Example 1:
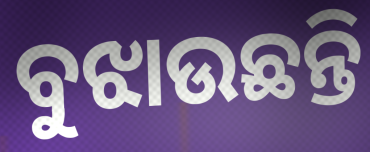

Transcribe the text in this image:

ବୁଝାଉଛନ୍ତି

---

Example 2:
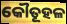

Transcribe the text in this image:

କୌତୂହଳ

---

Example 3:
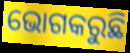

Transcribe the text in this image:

ଭୋଗକରୁଛି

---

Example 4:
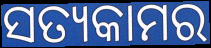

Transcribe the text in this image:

ସତ୍ୟକାମର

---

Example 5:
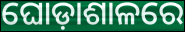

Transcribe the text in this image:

ଘୋଡ଼ାଶାଳରେ